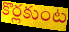
కొర్లకుంట